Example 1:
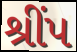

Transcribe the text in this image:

શ્રીંપ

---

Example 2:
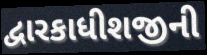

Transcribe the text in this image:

દ્વારકાધીશજીની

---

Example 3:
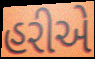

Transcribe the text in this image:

હરીએ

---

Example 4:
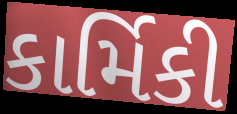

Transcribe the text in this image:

કાર્મિકી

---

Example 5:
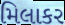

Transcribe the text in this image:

મિલાકર